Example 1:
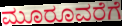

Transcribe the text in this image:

ಮೂರೂವರೆಗೆ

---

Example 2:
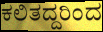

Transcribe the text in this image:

ಕಲಿತದ್ದರಿಂದ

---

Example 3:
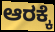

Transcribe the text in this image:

ಆರಕ್ಕೆ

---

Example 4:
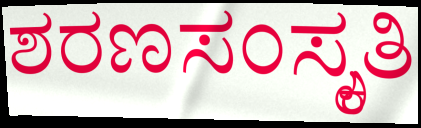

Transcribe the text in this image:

ಶರಣಸಂಸ್ಕೃತಿ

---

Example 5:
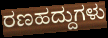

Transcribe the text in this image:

ರಣಹದ್ದುಗಳು